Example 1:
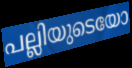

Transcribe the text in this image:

പല്ലിയുടെയോ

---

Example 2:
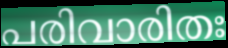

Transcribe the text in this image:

പരിവാരിതഃ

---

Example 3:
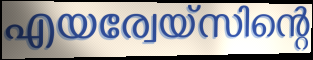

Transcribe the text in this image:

എയര്വേയ്സിന്റെ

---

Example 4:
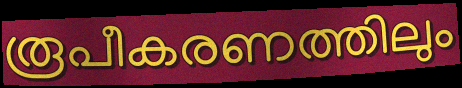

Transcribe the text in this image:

രൂപീകരണത്തിലും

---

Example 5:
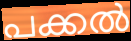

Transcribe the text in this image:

പക്കൽ